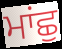
ਮਾਂਛੁ